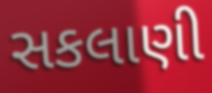
સકલાણી